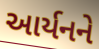
આર્યનને